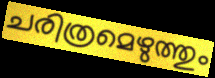
ചരിത്രമെഴുത്തും